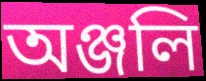
অঞ্জলি